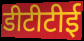
डीटीटीई